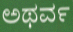
ಅಥರ್ವ